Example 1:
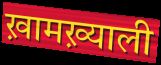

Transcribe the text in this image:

ख़ामख़्याली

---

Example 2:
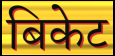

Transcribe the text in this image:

बिकेट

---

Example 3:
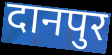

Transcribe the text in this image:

दानपुर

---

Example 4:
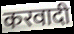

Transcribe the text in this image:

करवादी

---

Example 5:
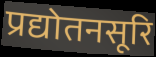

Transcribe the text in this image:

प्रद्योतनसूरि